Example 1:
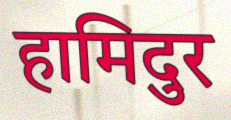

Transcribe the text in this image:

हामिदुर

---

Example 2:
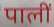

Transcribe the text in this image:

पालीं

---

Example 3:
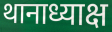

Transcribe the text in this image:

थानाध्याक्ष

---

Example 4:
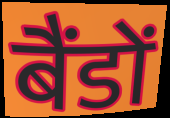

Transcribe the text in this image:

बैंडों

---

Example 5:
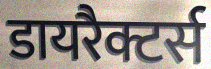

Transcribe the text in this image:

डायरैक्टर्स